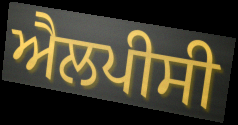
ਐਲਪੀਸੀ